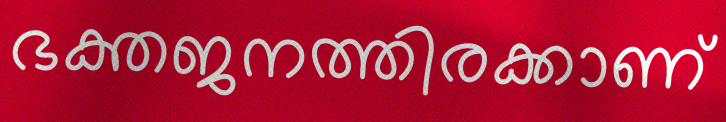
ഭക്തജനത്തിരക്കാണ്